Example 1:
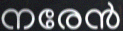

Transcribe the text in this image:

നരേൻ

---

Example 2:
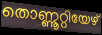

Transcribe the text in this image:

തൊണ്ണൂറ്റിയേഴ്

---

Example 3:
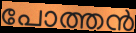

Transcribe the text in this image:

പോത്തൻ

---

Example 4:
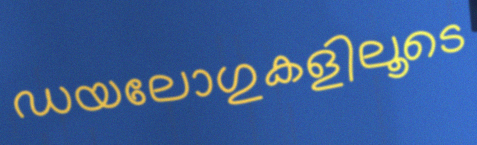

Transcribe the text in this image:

ഡയലോഗുകളിലൂടെ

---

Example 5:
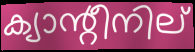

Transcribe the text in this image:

ക്യാന്റീനില്